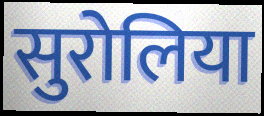
सुरोलिया